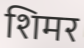
शिमर